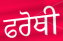
ਫਰੋਥੀ